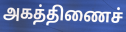
அகத்திணைச்